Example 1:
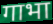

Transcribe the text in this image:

गाभा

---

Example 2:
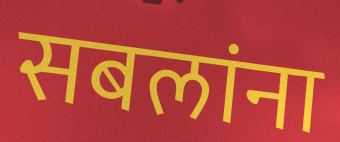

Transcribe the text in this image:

सबलांना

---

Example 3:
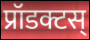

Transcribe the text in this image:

प्रॉडक्टस्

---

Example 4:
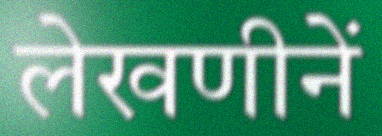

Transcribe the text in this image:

लेखणीनें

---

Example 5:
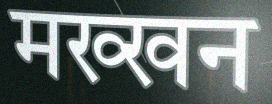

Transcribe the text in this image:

मख्खन